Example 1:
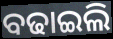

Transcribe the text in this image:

ବଢାଇଲି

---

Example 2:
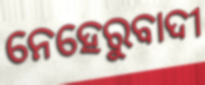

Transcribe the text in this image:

ନେହେରୁବାଦୀ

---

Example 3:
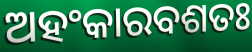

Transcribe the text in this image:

ଅହଂକାରବଶତଃ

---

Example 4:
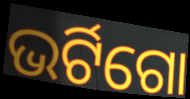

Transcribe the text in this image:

ଭର୍ଟିଗୋ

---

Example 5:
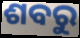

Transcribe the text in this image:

ଶବରୁ